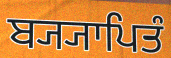
ਬ੍ਯ੍ਯਾਪਿਤੰ